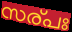
സര്പഃ